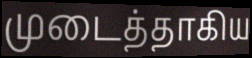
முடைத்தாகிய